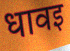
धावइ